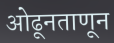
ओढूनताणून